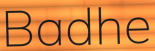
Badhe